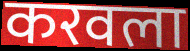
करवला